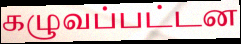
கழுவப்பட்டன